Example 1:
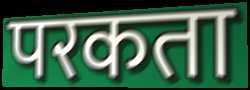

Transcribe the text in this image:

परकता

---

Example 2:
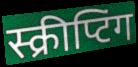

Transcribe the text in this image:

स्क्रीप्टिंग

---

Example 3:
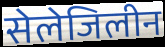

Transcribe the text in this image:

सेलेजिलीन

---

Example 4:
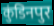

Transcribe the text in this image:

कुंडिनपुर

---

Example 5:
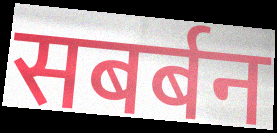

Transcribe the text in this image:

सबर्बन